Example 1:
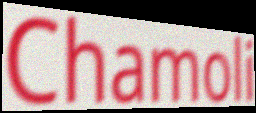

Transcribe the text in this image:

Chamoli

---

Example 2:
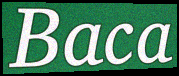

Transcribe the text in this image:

Baca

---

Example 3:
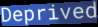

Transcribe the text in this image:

Deprived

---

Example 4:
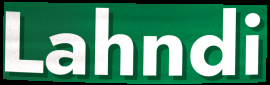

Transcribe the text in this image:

Lahndi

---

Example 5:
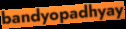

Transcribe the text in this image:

bandyopadhyay